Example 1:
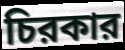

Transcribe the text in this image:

চিরকার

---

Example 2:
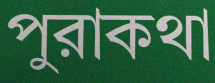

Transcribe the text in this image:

পুরাকথা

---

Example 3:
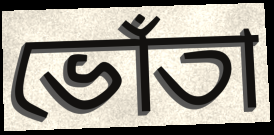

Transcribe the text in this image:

ভোঁতা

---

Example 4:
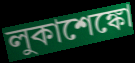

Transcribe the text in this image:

লুকাশেঙ্কো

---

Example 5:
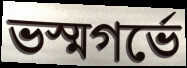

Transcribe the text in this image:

ভস্মগর্ভে